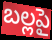
బల్లపై